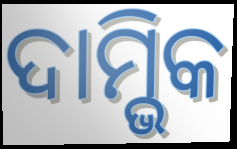
ଦାମ୍ଭିକ